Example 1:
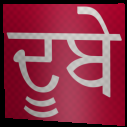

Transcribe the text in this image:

ਦੂਬੇ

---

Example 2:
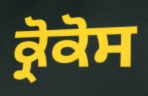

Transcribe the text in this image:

ਕ੍ਰੋਕੋਸ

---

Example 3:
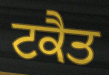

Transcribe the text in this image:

ਟਕੈਤ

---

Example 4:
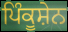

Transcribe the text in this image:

ਪਿੰਕੂਸ਼ੇਨ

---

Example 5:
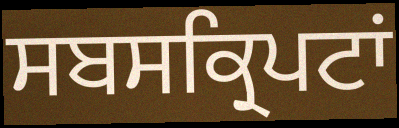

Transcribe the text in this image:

ਸਬਸਕ੍ਰਿਪਟਾਂ